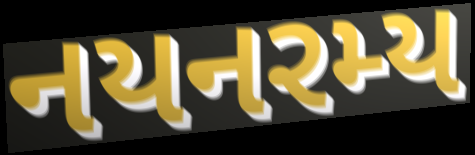
નયનરમ્ય